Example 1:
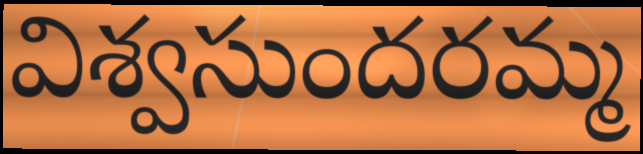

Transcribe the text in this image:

విశ్వసుందరమ్మ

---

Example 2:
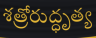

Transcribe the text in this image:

శత్రోరుద్ధృత్య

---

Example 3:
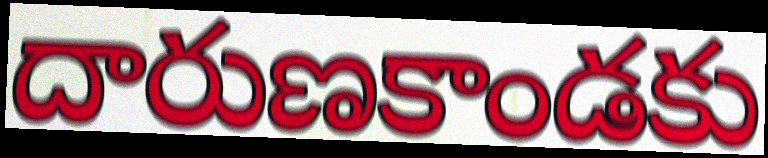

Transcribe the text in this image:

దారుణకాండకు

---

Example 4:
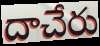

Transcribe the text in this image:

దాచేరు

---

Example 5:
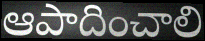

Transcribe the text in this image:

ఆపాదించాలి